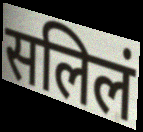
सलिलं